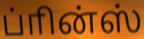
ப்ரின்ஸ்